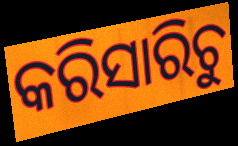
କରିସାରିଚୁ